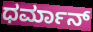
ಧರ್ಮಾನ್